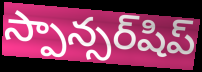
స్పాన్సర్‌షిప్